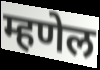
म्हणेल